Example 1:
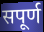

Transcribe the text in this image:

सपूर्ण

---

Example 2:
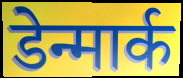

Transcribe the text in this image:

डेन्मार्क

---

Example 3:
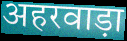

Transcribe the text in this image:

अहरवाड़ा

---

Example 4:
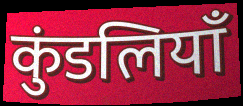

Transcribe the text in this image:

कुंडलियाँ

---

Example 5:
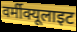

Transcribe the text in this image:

वर्मीक्यूलाइट